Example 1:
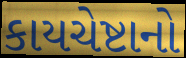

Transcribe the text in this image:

કાયચેષ્ટાનો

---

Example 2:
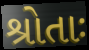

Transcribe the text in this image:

શ્રોતાઃ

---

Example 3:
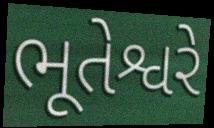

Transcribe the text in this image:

ભૂતેશ્વરે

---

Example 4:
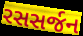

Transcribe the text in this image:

રસસર્જન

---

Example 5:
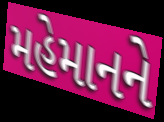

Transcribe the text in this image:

મહેમાનને